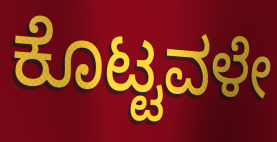
ಕೊಟ್ಟವಳೇ